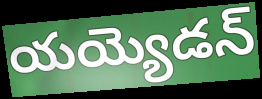
యయ్యెడన్